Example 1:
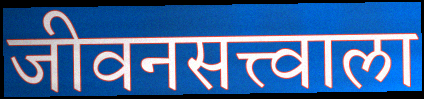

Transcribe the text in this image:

जीवनसत्त्वाला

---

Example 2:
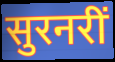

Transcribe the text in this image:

सुरनरीं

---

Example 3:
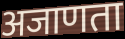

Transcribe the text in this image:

अजाणता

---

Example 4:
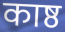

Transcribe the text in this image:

काष्ठ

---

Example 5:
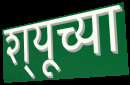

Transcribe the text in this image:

श्यूच्या